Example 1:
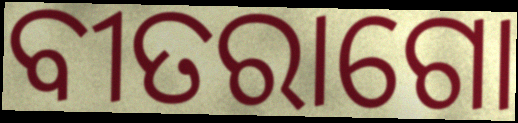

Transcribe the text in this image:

ବୀତରାଗୋ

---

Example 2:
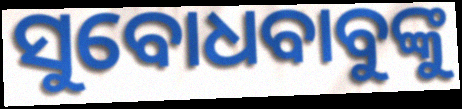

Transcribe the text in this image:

ସୁବୋଧବାବୁଙ୍କୁ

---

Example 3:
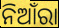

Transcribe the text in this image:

ନିଆଁରା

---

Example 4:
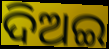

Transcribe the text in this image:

ଦିଅଇ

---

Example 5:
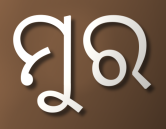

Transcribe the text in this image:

ମୁର